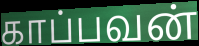
காப்பவன்